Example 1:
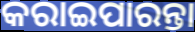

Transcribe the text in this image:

କରାଇପାରନ୍ତା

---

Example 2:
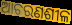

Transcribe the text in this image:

ଆଚରଣଶୀଳ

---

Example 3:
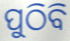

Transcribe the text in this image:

ପୁଠିବି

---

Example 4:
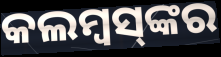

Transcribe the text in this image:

କଲମ୍ୱସ୍‌ଙ୍କର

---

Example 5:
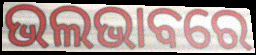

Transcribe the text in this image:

ଭଲଭାବରେ